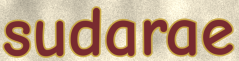
sudarae